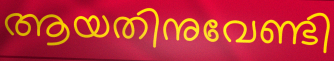
ആയതിനുവേണ്ടി